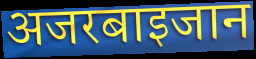
अजरबाइजान